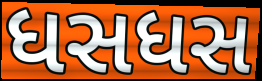
ધસધસ